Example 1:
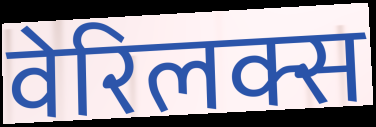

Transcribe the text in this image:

वेरिलक्स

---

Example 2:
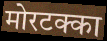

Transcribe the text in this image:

मोरटक्का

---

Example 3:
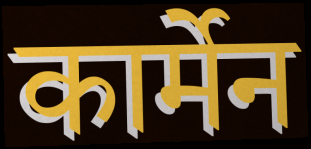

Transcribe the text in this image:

कार्मेन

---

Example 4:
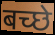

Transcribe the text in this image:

बच्छे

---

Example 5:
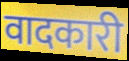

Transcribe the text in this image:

वादकारी